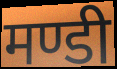
मण्डी